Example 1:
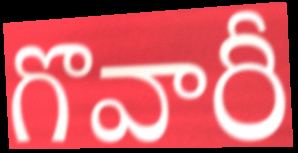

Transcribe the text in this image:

గొవారీ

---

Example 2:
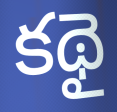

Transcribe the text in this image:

కథై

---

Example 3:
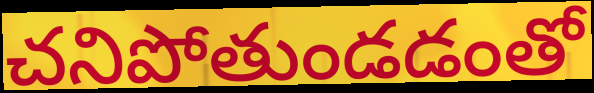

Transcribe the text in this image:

చనిపోతుండడంతో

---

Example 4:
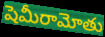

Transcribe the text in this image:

షెమీరామోతు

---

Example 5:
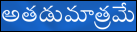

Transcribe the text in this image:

అతడుమాత్రమే